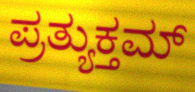
ಪ್ರತ್ಯುಕ್ತಮ್